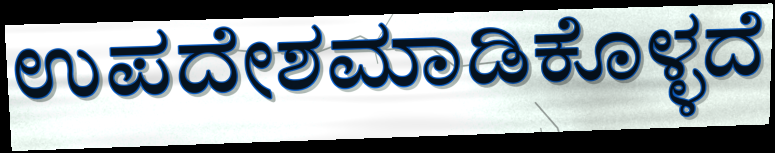
ಉಪದೇಶಮಾಡಿಕೊಳ್ಳದೆ